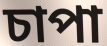
চাপা